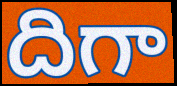
దిగా